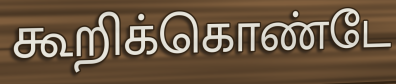
கூறிக்கொண்டே